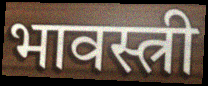
भावस्त्री